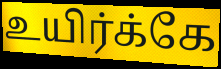
உயிர்க்கே